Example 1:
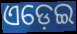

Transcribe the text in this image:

ଏଡ଼େଇ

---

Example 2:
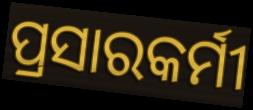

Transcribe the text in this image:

ପ୍ରସାରକର୍ମୀ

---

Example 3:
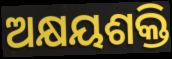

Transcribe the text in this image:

ଅକ୍ଷୟଶକ୍ତି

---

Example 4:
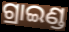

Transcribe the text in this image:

ଗ୍ରାଇଣ୍ଡ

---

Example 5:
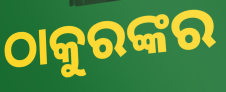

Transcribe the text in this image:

ଠାକୁରଙ୍କର